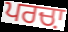
ਪਰਚ਼ਾ